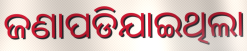
ଜଣାପଡିଯାଇଥିଲା